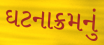
ઘટનાક્રમનું